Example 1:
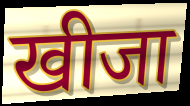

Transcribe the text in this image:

खीजा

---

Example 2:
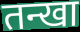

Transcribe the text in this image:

तन्खा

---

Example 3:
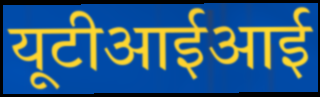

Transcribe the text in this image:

यूटीआईआई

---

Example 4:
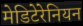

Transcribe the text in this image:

मेडिटेरेनियन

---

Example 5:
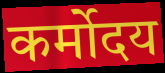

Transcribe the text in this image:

कर्मोदय